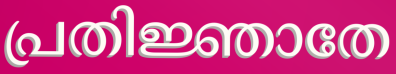
പ്രതിജ്ഞാതേ